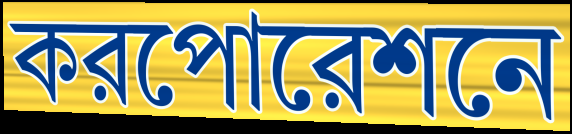
করপোরেশনে